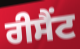
ਰੀਸੈਂਟ